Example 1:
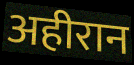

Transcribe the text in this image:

अहीरान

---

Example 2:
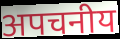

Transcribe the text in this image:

अपचनीय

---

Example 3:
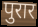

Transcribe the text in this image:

पुरार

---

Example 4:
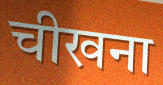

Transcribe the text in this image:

चीखना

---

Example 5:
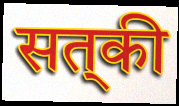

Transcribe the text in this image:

सत्‌की